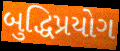
બુદ્ધિપ્રયોગ